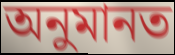
অনুমানত